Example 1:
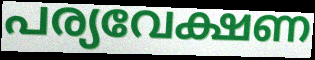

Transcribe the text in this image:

പര്യവേക്ഷണ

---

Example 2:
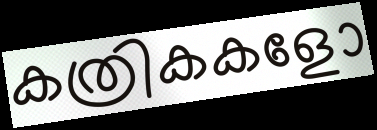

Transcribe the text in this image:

കത്രികകളോ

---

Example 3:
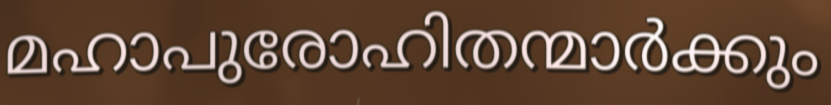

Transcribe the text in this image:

മഹാപുരോഹിതന്മാർക്കും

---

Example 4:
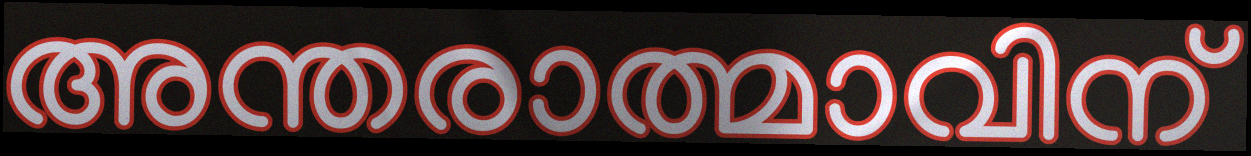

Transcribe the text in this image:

അന്തരാത്മാവിന്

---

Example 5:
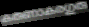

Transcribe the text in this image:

കരുണാകരഗുരു